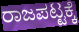
ರಾಜಪಟ್ಟಕ್ಕೆ